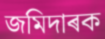
জমিদাৰক